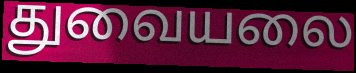
துவையலை